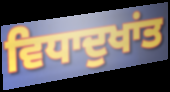
ਵਿਧਾਦੁਖਾਂਤ